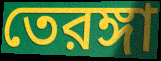
তেরঙ্গা